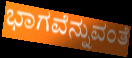
ಭಾಗವೆನ್ನುವಂತೆ